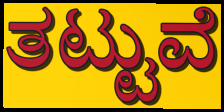
ತಟ್ಟುವೆ